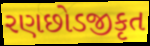
રણછોડજીકૃત